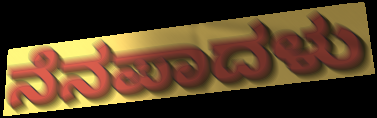
ನೆನಪಾದಳು